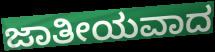
ಜಾತೀಯವಾದ